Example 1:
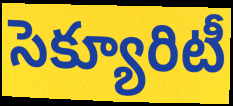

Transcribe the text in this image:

సెక్యూరిటీ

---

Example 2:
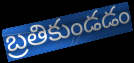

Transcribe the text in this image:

బ్రతికుండడం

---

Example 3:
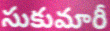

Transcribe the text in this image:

సుకుమారీ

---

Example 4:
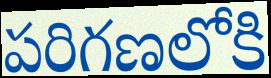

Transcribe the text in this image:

పరిగణలోకి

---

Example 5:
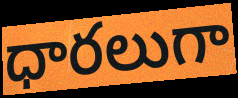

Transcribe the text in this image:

ధారలుగా